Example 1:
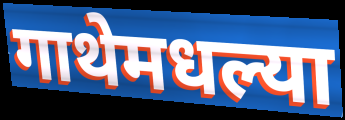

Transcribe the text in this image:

गाथेमधल्या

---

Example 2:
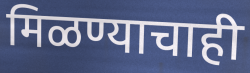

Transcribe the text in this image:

मिळण्याचाही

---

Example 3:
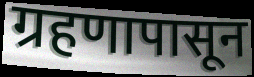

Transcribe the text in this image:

ग्रहणापासून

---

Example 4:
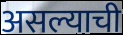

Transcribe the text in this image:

असल्याची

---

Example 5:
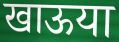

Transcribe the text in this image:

खाऊया